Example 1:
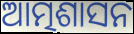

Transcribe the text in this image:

ଆତ୍ମଶାସନ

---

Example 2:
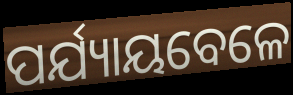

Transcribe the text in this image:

ପର୍ଯ୍ୟାୟବେଳେ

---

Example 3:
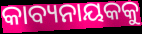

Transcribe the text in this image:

କାବ୍ୟନାୟକକୁ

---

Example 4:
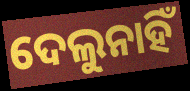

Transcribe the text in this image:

ଦେଲୁନାହିଁ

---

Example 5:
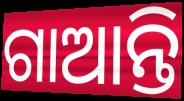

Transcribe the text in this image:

ଗାଆନ୍ତି